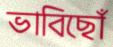
ভাবিছোঁ